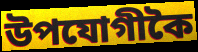
উপযোগীকৈ